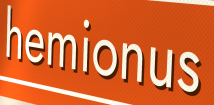
hemionus